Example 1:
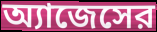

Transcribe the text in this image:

অ্যাজেসের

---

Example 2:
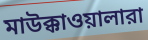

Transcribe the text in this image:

মাউক্কাওয়ালারা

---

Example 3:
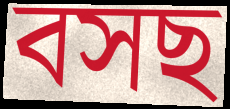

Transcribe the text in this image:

বসছ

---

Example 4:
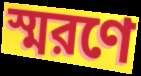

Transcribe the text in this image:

স্মরণে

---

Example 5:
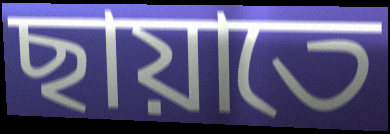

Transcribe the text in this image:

ছায়াতে